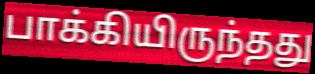
பாக்கியிருந்தது